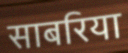
साबरिया